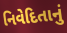
નિવેદિતાનું